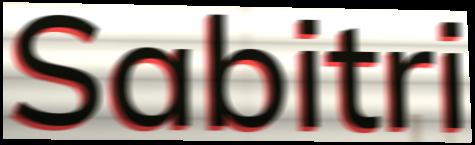
Sabitri